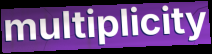
multiplicity